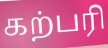
கற்பரி